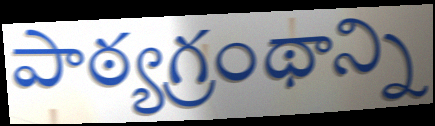
పాఠ్యగ్రంథాన్ని